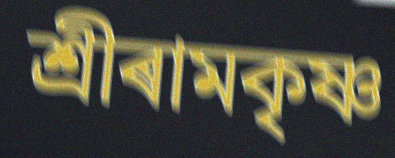
শ্ৰীৰামকৃষ্ণ